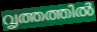
വൃത്തത്തിൽ